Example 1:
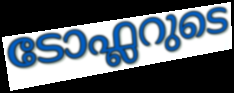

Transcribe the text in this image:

ടോഫ്ലറുടെ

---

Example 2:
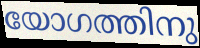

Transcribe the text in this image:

യോഗത്തിനു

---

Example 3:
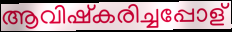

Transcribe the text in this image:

ആവിഷ്കരിച്ചപ്പോള്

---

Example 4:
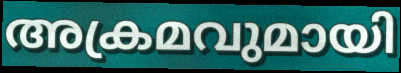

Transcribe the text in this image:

അക്രമവുമായി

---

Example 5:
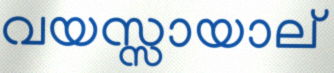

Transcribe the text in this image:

വയസ്സായാല്